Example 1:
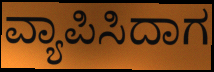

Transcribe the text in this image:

ವ್ಯಾಪಿಸಿದಾಗ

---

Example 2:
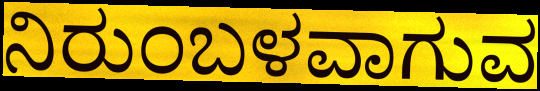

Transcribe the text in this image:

ನಿರುಂಬಳವಾಗುವ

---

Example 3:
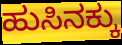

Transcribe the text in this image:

ಹುಸಿನಕ್ಕು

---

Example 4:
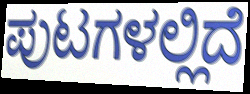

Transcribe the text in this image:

ಪುಟಗಳಲ್ಲಿದೆ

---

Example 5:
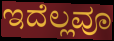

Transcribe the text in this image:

ಇದೆಲ್ಲವೂ